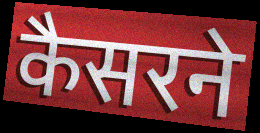
कैसरने